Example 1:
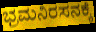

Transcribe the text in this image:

ಭ್ರಮನಿರಸನಕ್ಕೆ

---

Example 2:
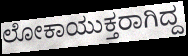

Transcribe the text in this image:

ಲೋಕಾಯುಕ್ತರಾಗಿದ್ದ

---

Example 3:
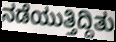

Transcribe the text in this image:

ನಡೆಯುತ್ತಿದ್ದಿತು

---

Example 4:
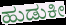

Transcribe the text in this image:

ಹುಡುಕೀ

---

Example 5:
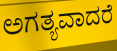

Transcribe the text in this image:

ಅಗತ್ಯವಾದರೆ